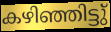
കഴിഞ്ഞിട്ടു്